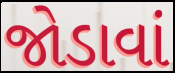
જોડાવાં